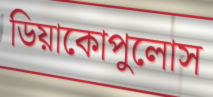
ডিয়াকোপুলোস